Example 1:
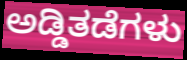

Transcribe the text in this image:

ಅಡ್ಡಿತಡೆಗಳು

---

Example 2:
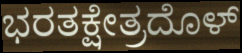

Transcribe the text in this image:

ಭರತಕ್ಷೇತ್ರದೊಳ್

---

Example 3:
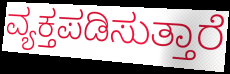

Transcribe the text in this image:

ವ್ಯಕ್ತಪಡಿಸುತ್ತಾರೆ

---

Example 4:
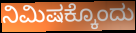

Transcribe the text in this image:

ನಿಮಿಷಕ್ಕೊಂದು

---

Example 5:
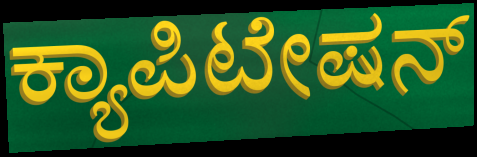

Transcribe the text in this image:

ಕ್ಯಾಪಿಟೇಷನ್